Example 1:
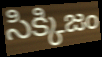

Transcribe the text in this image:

సిక్కిజం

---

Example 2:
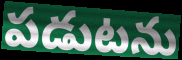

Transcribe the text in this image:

పడుటను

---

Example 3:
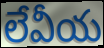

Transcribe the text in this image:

లేవీయ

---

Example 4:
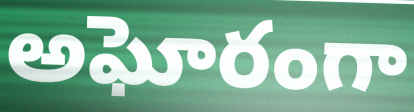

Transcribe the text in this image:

అఘోరంగా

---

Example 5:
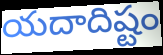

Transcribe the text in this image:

యదాదిష్టం